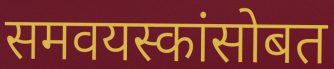
समवयस्कांसोबत